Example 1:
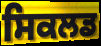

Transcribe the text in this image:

ਸਿਕਲਡ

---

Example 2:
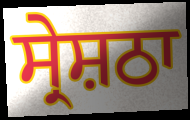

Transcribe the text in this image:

ਸ੍ਰੇਸ਼ਠਾ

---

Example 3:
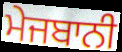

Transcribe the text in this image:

ਮੇਜਬਾਨੀ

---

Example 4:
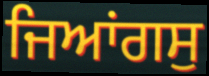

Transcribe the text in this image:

ਜਿਆਂਗਸੁ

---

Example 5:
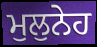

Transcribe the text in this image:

ਮੁਲੁਨੇਹ